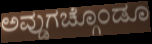
ಅವ್ಡುಗಚ್ಗೊಂಡೂ